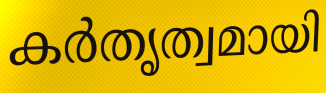
കർതൃത്വമായി